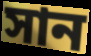
সান